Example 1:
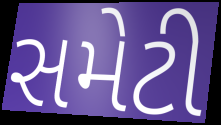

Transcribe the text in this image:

સમેટી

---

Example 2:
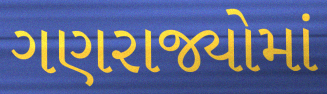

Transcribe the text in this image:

ગણરાજ્યોમાં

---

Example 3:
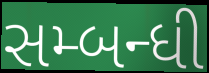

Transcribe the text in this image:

સમ્બન્ધી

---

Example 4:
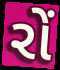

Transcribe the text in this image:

રોં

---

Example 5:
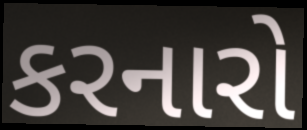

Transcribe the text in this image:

કરનારો